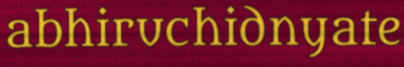
abhiruchidnyate